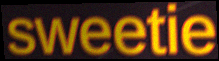
sweetie